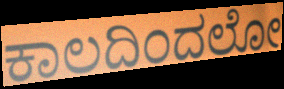
ಕಾಲದಿಂದಲೋ